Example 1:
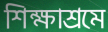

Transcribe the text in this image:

শিক্ষাশ্রমে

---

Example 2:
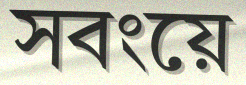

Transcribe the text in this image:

সবংয়ে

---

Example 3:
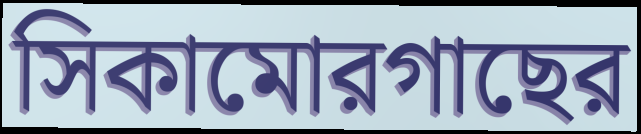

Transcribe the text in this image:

সিকামোরগাছের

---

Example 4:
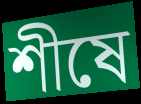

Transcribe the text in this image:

শীষে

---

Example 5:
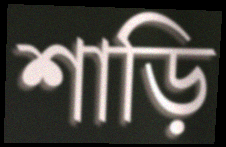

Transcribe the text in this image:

শাড়ি